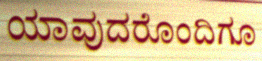
ಯಾವುದರೊಂದಿಗೂ